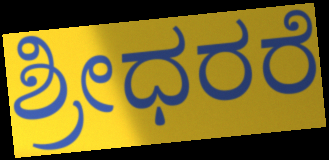
ಶ್ರೀಧರರೆ